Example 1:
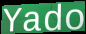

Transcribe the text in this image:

Yado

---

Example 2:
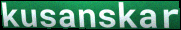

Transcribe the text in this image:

kusanskar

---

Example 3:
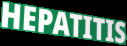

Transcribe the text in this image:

HEPATITIS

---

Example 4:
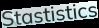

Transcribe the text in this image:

Stastistics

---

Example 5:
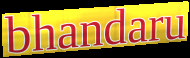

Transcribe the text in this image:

bhandaru